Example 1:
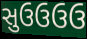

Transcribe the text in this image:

સુઉઉઉઉ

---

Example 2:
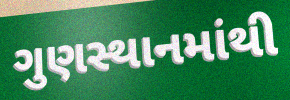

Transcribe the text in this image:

ગુણસ્થાનમાંથી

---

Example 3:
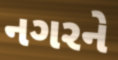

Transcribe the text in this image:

નગરને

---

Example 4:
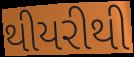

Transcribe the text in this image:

થીયરીથી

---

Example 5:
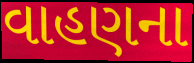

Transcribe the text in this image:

વાહણના